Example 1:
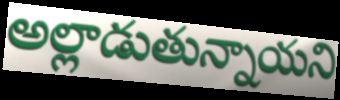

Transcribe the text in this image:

అల్లాడుతున్నాయని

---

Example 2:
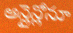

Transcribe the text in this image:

ఆన్లైన్లోనూ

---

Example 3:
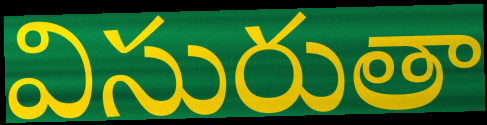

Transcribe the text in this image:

విసురుతా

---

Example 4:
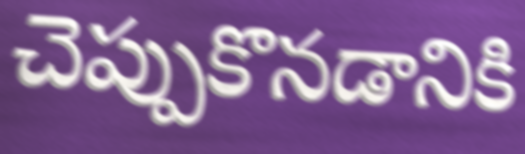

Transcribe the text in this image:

చెప్పుకొనడానికి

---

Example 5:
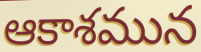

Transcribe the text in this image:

ఆకాశమున